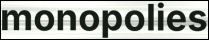
monopolies